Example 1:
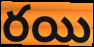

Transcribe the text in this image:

రయి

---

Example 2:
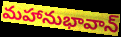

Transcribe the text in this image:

మహానుభావాన్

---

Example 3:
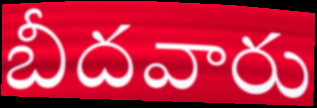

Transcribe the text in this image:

బీదవారు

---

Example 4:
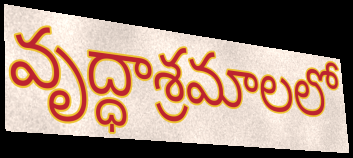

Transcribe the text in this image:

వృద్ధాశ్రమాలలో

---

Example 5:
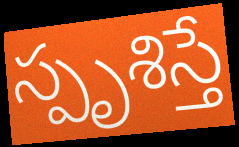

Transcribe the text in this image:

స్పృశిస్తే